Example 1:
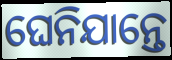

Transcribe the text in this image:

ଘେନିଯାନ୍ତେ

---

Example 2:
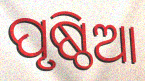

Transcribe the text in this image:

ପୃଷ୍ଠିଆ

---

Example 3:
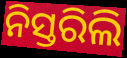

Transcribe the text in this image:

ନିସ୍ତରିଲି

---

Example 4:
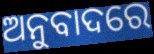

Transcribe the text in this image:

ଅନୁବାଦରେ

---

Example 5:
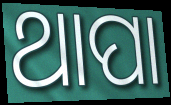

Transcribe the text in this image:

ଥାପା